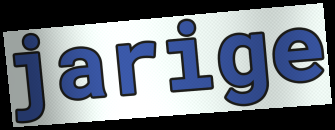
jarige